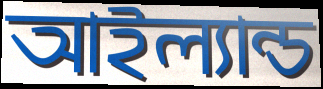
আইল্যান্ড